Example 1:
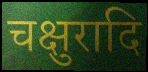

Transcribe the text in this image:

चक्षुरादि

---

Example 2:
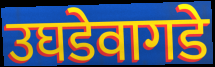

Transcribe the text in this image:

उघडेवागडे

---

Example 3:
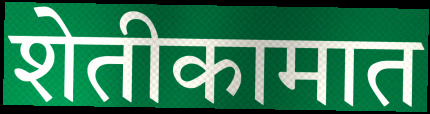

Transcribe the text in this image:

शेतीकामात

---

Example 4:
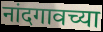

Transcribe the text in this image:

नांदगावच्या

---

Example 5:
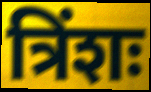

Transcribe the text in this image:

त्रिंशः